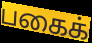
பகைக்